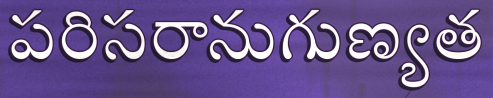
పరిసరానుగుణ్యత